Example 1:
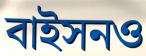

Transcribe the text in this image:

বাইসনও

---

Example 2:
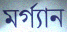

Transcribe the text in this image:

মর্গ্যান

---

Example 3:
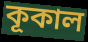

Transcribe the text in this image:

কূকাল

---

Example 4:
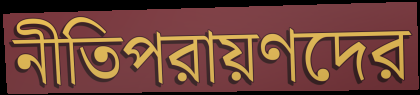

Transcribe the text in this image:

নীতিপরায়ণদের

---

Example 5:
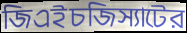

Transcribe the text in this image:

জিএইচজিস্যাটের